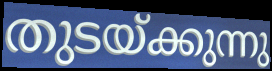
തുടയ്ക്കുന്നു